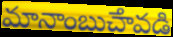
మానాంబుౘావడి